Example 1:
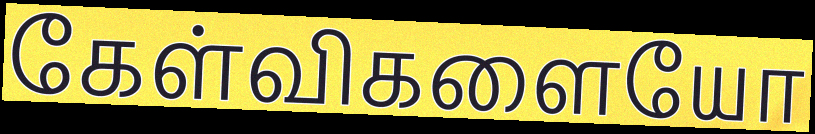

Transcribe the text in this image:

கேள்விகளையோ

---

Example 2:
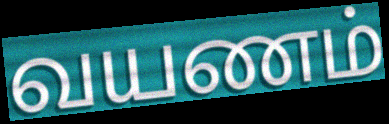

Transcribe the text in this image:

வயணம்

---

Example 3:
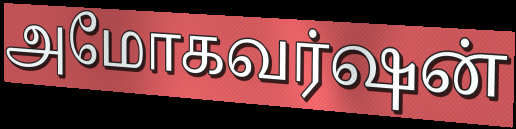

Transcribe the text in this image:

அமோகவர்ஷன்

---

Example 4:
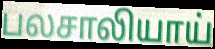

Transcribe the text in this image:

பலசாலியாய்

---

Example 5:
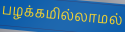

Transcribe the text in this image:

பழக்கமில்லாமல்